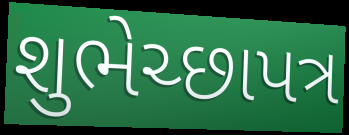
શુભેચ્છાપત્ર